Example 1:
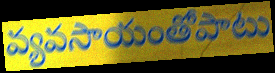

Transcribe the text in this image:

వ్యవసాయంతోపాటు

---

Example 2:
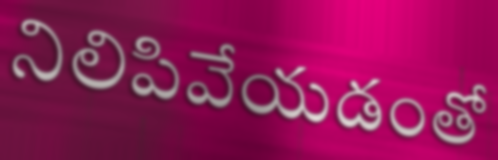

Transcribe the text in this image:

నిలిపివేయడంతో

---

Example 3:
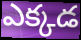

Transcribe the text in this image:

ఎక్కడ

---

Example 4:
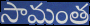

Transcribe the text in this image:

సామంత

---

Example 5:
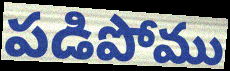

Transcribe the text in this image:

పడిపోము